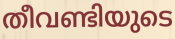
തീവണ്ടിയുടെ